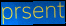
prsent